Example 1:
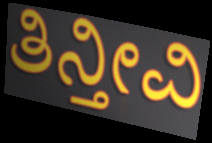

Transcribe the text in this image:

ತಿನ್ತೀವಿ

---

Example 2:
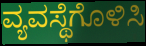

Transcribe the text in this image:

ವ್ಯವಸ್ಥೆಗೊಳಿಸಿ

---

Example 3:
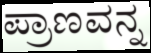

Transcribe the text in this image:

ಪ್ರಾಣವನ್ನ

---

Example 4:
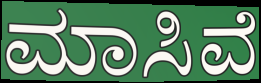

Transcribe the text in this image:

ಮಾಸಿವೆ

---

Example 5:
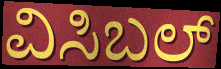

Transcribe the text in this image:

ವಿಸಿಬಲ್